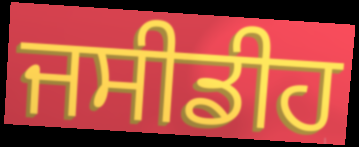
ਜਸੀਡੀਹ